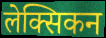
लेक्सिकन